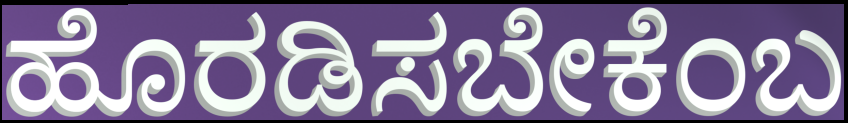
ಹೊರಡಿಸಬೇಕೆಂಬ